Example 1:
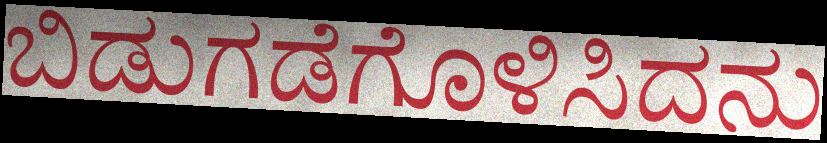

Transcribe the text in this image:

ಬಿಡುಗಡೆಗೊಳಿಸಿದನು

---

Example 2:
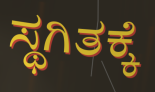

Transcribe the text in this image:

ಸ್ಥಗಿತಕ್ಕೆ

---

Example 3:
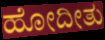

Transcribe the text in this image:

ಹೋದೀತು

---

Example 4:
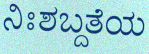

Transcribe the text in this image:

ನಿಃಶಬ್ದತೆಯ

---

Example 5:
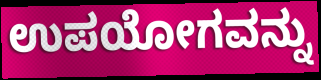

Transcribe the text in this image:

ಉಪಯೋಗವನ್ನು